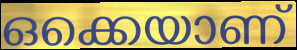
ഒക്കെയാണ്